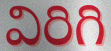
విరిగి